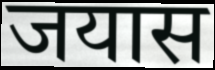
जयास